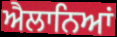
ਐਲਾਨਿਆਂ